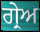
ਗ੍ਰੇਅ